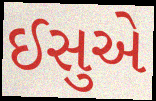
ઈસુએ